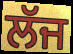
ਲੱਜ